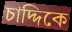
চাদ্দিকে